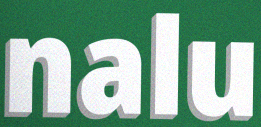
nalu